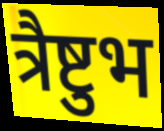
त्रैष्टुभ